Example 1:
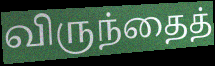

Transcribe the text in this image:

விருந்தைத்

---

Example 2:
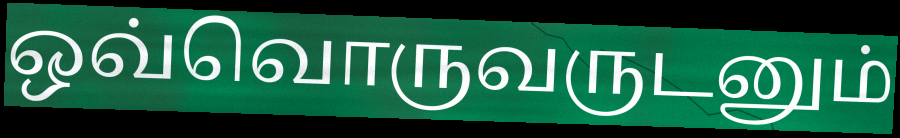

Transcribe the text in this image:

ஒவ்வொருவருடனும்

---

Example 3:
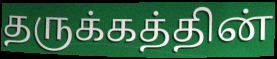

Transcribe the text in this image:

தருக்கத்தின்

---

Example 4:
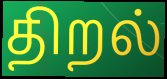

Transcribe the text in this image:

திறல்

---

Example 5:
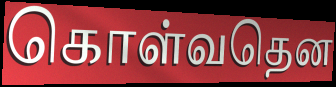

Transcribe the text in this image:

கொள்வதென